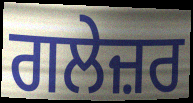
ਗਲੇਜ਼ਰ